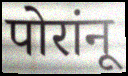
पोरांनू